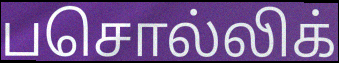
பசொல்லிக்